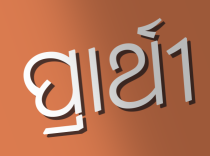
ପ୍ରାର୍ଥୀ